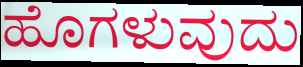
ಹೊಗಳುವುದು